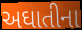
અઘાતીના